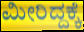
ಮೀರಿದ್ದಕ್ಕೆ